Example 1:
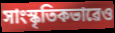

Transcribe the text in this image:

সাংস্কৃতিকভাৱেও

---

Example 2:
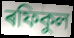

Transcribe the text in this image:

ৰফিকুল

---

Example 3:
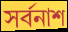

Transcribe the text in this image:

সৰ্বনাশ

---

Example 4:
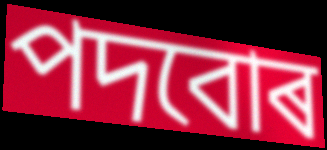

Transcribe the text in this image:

পদবোৰ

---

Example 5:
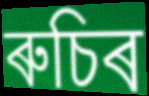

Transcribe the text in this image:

ৰুচিৰ